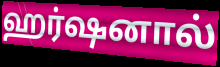
ஹர்ஷனால்